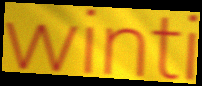
winti